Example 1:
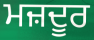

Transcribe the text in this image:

ਮਜ਼ਦੂਰ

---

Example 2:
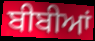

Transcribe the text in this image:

ਬੀਬੀਆਂ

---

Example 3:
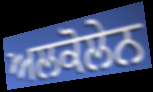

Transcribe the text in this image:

ਅਲਕੋਲੇਨ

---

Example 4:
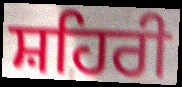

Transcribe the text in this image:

ਸ਼ਹਿਰੀ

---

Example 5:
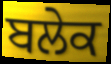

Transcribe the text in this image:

ਬਲੇਕ